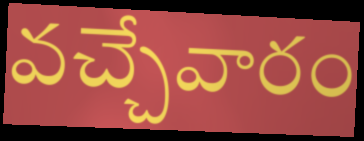
వచ్చేవారం